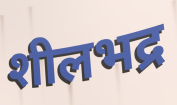
शीलभद्र